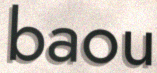
baou